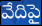
వేదిపై